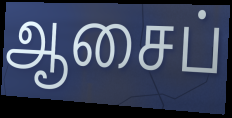
ஆசைப்